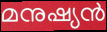
മനുഷ്യൻ